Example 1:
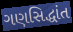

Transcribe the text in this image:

ગણસિદ્ધાંત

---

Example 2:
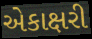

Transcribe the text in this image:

એકાક્ષરી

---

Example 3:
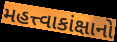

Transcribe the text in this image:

મહત્ત્વાકાંક્ષાનો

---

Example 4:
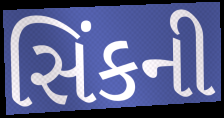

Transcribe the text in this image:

સિંકની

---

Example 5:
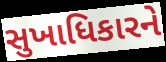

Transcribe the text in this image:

સુખાધિકારને